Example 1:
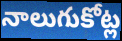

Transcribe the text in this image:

నాలుగుకోట్ల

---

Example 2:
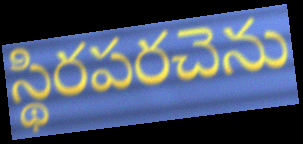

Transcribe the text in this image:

స్థిరపరచెను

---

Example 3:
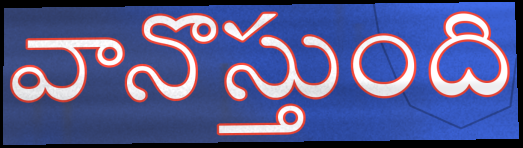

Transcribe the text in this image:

వానొస్తుంది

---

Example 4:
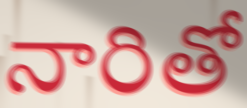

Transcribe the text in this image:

నారితో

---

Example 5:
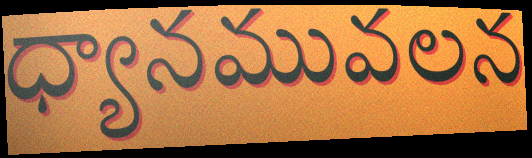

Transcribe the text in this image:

ధ్యానమువలన